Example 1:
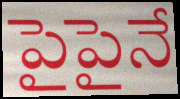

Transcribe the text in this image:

పైపైనే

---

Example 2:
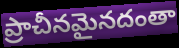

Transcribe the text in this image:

ప్రాచీనమైనదంతా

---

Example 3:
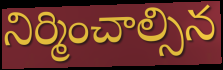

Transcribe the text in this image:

నిర్మించాల్సిన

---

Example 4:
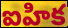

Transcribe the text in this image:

ఐహిక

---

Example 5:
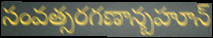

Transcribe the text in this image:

సంవత్సరగణాన్బహూన్